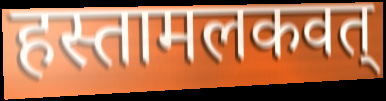
हस्तामलकवत्